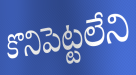
కొనిపెట్టలేని